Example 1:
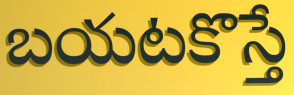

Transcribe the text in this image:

బయటకొస్తే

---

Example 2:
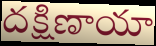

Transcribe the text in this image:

దక్షిణాయా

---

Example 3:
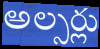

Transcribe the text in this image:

అల్సర్లు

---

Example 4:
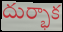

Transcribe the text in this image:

దుర్భాక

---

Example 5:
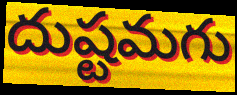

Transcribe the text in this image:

దుష్టమగు